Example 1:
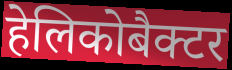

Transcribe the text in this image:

हेलिकोबैक्टर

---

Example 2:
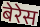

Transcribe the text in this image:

बेरेस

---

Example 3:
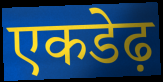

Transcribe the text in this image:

एकडेढ़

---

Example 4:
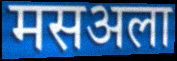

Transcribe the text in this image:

मसअला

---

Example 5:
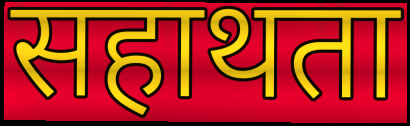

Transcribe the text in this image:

सहाथता